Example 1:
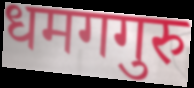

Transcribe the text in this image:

धमगगुरु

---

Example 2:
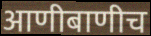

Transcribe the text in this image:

आणीबाणीच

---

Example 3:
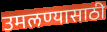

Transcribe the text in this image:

उमलण्यासाठी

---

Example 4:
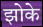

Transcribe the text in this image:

झोके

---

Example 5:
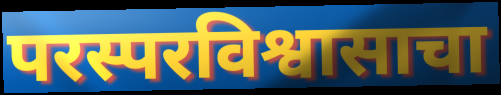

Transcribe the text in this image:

परस्परविश्वासाचा